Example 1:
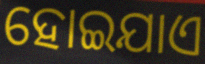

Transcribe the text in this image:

ହୋଇଯାଏ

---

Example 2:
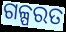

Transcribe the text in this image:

ଗଳ୍ପରତ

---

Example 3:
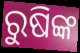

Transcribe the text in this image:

ରୁଷିଙ୍କ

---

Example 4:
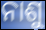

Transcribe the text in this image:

ନାଶୁ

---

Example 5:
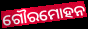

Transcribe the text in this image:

ଗୌରମୋହନ